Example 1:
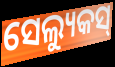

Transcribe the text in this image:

ସେଲ୍ୟୁକସ୍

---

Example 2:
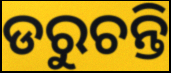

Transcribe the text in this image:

ଡରୁଚନ୍ତି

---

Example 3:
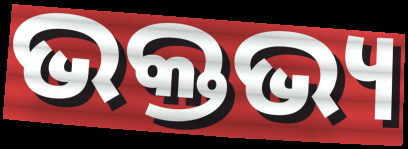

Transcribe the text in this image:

ଭକ୍ତଭ୍ୟ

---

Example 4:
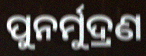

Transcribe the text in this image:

ପୁନର୍ମୁଦ୍ରଣ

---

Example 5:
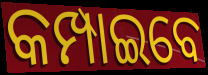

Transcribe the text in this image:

କମ୍ପାଇବେ